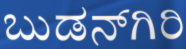
ಬುಡನ್‍ಗಿರಿ